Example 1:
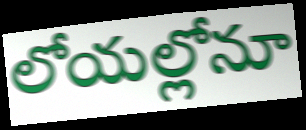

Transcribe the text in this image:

లోయల్లోనూ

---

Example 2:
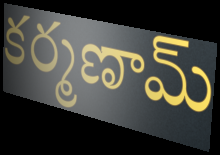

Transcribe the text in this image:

కర్మణామ్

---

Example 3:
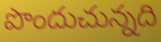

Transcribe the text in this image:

పొందుచున్నది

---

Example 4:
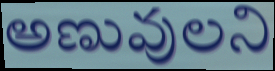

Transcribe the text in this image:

అణువులని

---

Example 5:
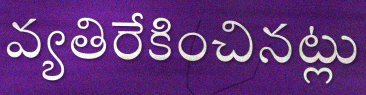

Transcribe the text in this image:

వ్యతిరేకించినట్లు